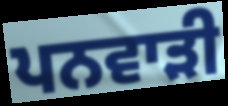
ਪਨਵਾੜੀ